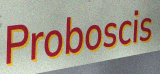
Proboscis